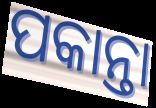
ପକାନ୍ତା